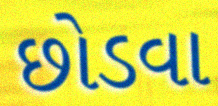
છોડવા